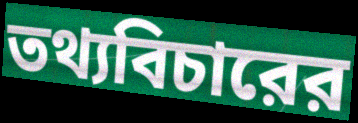
তথ্যবিচারের